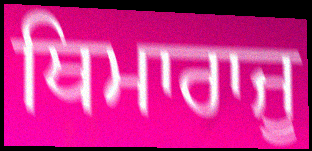
ਥਿਮਾਰਾਜੂ